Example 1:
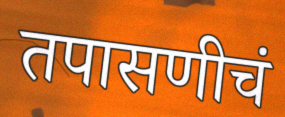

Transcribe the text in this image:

तपासणीचं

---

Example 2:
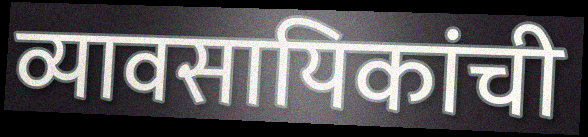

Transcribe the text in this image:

व्यावसायिकांची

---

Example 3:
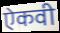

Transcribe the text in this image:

ऐकवी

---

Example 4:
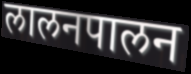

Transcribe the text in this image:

लालनपालन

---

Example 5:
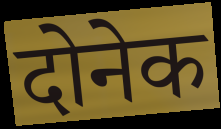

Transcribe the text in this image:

दोनेक